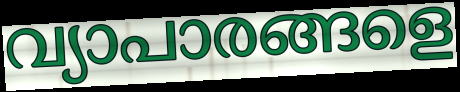
വ്യാപാരങ്ങളെ